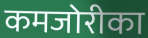
कमजोरीका